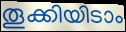
തൂക്കിയിടാം